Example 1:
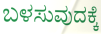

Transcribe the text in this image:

ಬಳಸುವುದಕ್ಕೆ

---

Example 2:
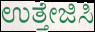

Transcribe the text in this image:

ಉತ್ತೇಜಿಸಿ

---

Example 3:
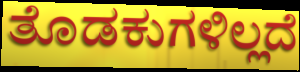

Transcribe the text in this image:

ತೊಡಕುಗಳಿಲ್ಲದೆ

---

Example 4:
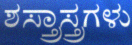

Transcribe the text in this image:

ಶಸ್ತ್ರಾಸ್ತ್ರಗಳು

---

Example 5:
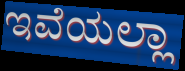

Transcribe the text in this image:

ಇವೆಯಲ್ಲಾ